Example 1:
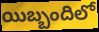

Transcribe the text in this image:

యిబ్బందిలో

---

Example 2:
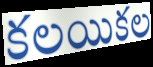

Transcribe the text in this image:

కలయికల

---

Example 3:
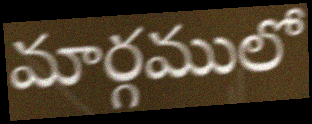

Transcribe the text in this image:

మార్గములో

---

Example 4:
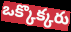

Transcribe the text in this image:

ఒక్కొక్కరు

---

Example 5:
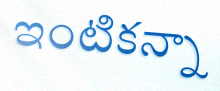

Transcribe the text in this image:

ఇంటికన్నా